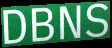
DBNS